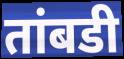
तांबडी